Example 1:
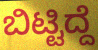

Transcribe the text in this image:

ಬಿಟ್ಟಿದ್ದೆ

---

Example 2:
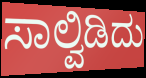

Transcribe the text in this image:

ಸಾಲ್ವಿಡಿದು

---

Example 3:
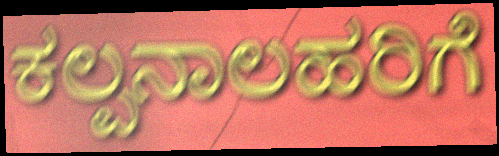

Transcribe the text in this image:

ಕಲ್ಪನಾಲಹರಿಗೆ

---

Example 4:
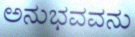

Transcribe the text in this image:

ಅನುಭವವನು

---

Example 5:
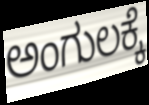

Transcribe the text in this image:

ಅಂಗುಲಕ್ಕೆ